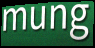
mung